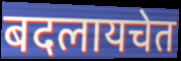
बदलायचेत